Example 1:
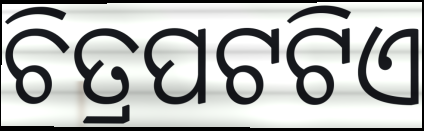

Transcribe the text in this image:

ଚିତ୍ରପଟଟିଏ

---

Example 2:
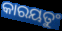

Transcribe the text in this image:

କାରୟତୁଂ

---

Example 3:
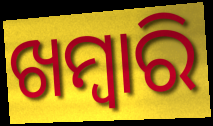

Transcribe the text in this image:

ଖମ୍ୱାରି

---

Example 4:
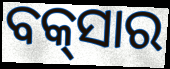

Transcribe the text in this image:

ବକ୍‌ସାର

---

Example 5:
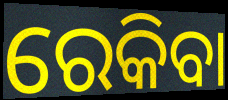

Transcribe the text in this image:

ରେକିବା